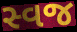
સ્વજ